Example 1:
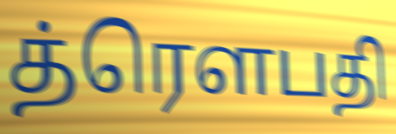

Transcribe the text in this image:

த்ரௌபதி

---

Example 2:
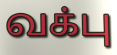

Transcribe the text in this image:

வக்பு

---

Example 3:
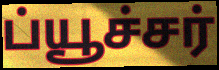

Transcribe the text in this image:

ப்யூச்சர்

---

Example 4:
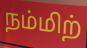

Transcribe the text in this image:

நம்மிற்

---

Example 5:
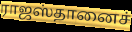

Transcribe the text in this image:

ராஜஸ்தானைச்